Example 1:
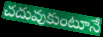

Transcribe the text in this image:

చదువుకుంటూనే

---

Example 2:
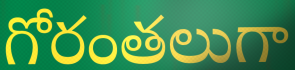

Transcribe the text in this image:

గోరంతలుగా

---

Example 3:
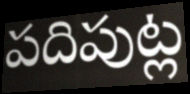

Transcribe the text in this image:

పదిపుట్ల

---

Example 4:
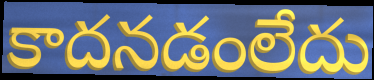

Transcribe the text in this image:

కాదనడంలేదు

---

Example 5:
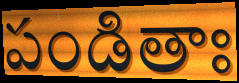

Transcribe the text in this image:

పండితాః